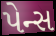
પેન્સ